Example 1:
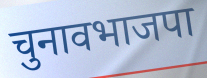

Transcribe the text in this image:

चुनावभाजपा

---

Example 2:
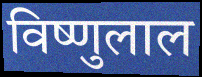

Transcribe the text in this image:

विष्णुलाल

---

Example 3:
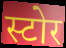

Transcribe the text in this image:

स्टोर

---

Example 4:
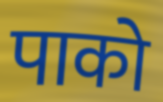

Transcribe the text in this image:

पाको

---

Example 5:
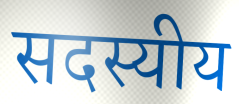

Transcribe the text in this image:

सदस्यीय